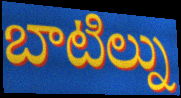
బాటిల్ను